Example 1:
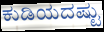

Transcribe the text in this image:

ಕುಡಿಯದಷ್ಟು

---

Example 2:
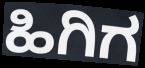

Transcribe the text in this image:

ಹಿಗಿಗ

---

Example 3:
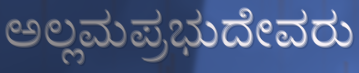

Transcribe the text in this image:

ಅಲ್ಲಮಪ್ರಭುದೇವರು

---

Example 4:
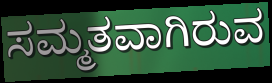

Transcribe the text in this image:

ಸಮ್ಮತವಾಗಿರುವ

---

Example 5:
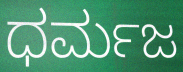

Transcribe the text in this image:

ಧರ್ಮಜ